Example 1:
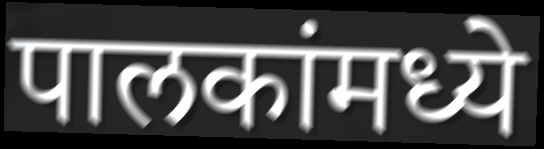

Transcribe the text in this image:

पालकांमध्ये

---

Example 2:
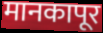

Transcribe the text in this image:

मानकापूर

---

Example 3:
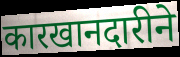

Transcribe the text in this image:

कारखानदारीने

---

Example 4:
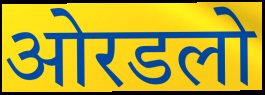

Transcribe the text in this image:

ओरडलो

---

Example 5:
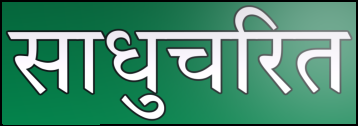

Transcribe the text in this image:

साधुचरित